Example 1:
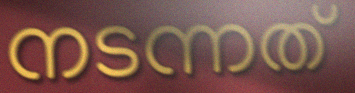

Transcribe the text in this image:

നടന്നത്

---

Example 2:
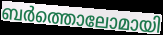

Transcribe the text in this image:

ബർത്തൊലോമായി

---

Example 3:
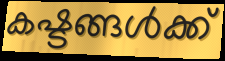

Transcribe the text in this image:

കഷ്ടങ്ങൾക്ക്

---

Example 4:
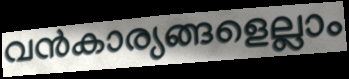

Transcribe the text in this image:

വൻകാര്യങ്ങളെല്ലാം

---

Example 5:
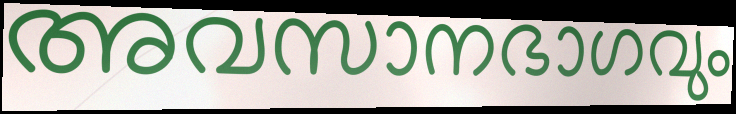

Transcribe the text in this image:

അവസാനഭാഗവും